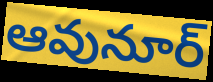
ఆవునూర్